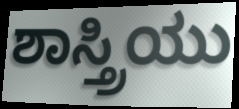
ಶಾಸ್ತ್ರಿಯು